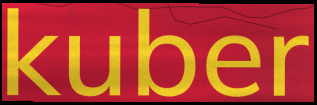
kuber